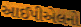
આઈપીએલનો